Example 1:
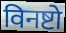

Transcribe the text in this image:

विनष्टो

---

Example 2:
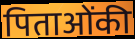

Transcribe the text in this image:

पिताओंकी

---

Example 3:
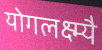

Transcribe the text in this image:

योगलक्ष्म्यै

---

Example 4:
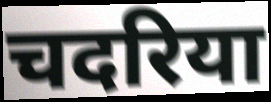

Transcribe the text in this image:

चदरिया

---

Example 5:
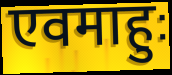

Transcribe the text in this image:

एवमाहुः